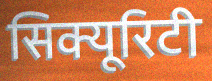
सिक्यूरिटी